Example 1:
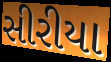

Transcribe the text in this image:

સીરીયા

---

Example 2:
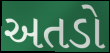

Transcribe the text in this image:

અતડો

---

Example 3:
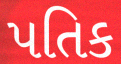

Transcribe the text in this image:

પતિક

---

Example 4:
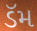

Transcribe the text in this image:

ડૅમ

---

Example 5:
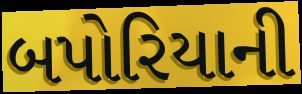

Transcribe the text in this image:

બપોરિયાની